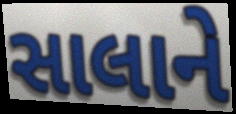
સાલાને